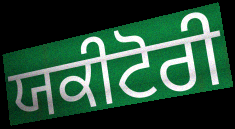
ਯਕੀਟੋਰੀ